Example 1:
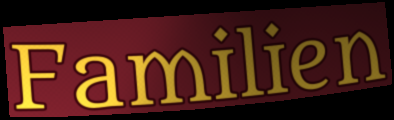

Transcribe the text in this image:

Familien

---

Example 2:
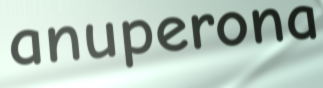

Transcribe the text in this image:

anuperona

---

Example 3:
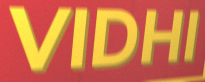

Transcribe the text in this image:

VIDHI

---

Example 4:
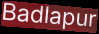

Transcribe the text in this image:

Badlapur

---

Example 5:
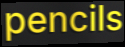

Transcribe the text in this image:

pencils